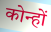
कोन्हों